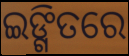
ଇଙ୍ଗିତରେ